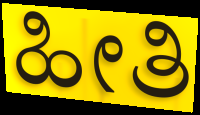
ಹೀತಿ